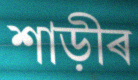
শাড়ীৰ